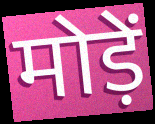
मोड़ें